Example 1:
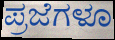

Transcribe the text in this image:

ಪ್ರಜೆಗಳೂ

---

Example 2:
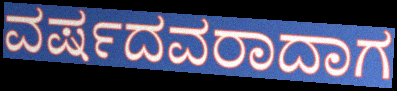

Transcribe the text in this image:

ವರ್ಷದವರಾದಾಗ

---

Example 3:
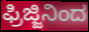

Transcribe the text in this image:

ಫ್ರಿಜ್ಜಿನಿಂದ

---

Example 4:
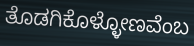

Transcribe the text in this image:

ತೊಡಗಿಕೊಳ್ಳೋಣವೆಂಬ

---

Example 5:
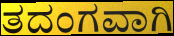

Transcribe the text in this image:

ತದಂಗವಾಗಿ